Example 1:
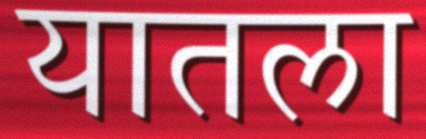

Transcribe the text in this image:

यातला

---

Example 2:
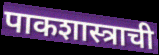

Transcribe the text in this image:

पाकशास्त्राची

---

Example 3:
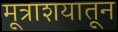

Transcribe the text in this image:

मूत्राशयातून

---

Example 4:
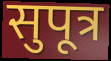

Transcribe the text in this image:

सुपूत्र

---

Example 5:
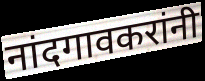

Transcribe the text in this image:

नांदगावकरांनी